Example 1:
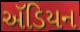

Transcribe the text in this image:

ઍંડિયન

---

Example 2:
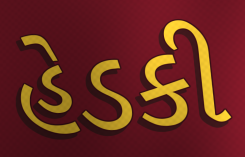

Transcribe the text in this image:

હેડકી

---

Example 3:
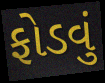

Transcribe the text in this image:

ફોડવું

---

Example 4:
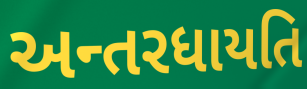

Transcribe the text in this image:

અન્તરધાયતિ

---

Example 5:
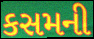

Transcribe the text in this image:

કસમની